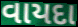
વાયદા